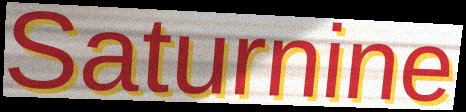
Saturnine